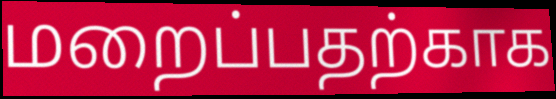
மறைப்பதற்காக